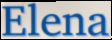
Elena